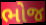
ભોજ